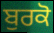
ਬੁਰਕੋ